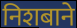
निशबाने